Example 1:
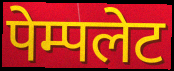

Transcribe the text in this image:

पेम्पलेट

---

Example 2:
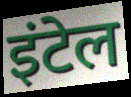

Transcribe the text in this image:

इंटेल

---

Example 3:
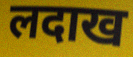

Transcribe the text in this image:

लदाख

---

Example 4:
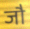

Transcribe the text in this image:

जौ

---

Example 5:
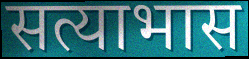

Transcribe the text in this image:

सत्याभास